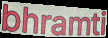
bhramti